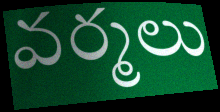
వర్మలు